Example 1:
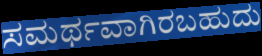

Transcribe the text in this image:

ಸಮರ್ಥವಾಗಿರಬಹುದು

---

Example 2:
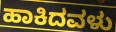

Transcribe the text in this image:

ಹಾಕಿದವಳು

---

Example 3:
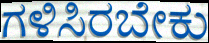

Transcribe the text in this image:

ಗಳಿಸಿರಬೇಕು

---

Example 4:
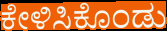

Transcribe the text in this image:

ಕೇಳಿಸಿಕೊಂಡು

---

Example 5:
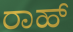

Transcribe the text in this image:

ರಾಹ್